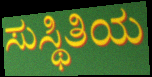
ಸುಸ್ಥಿತಿಯ